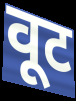
वूट